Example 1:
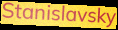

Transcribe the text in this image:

Stanislavsky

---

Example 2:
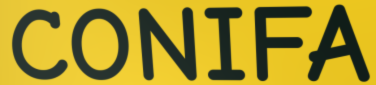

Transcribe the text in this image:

CONIFA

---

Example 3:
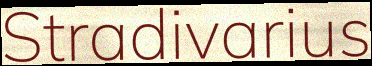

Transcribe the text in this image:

Stradivarius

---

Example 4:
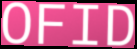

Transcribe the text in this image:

OFID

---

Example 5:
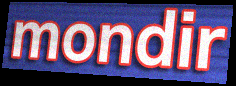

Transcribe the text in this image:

mondir